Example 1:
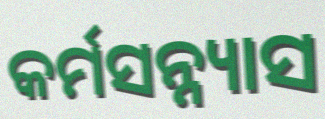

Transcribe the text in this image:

କର୍ମସନ୍ନ୍ୟାସ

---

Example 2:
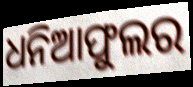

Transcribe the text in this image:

ଧନିଆଫୁଲର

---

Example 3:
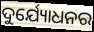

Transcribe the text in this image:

ଦୁର୍ଯ୍ୟୋଧନର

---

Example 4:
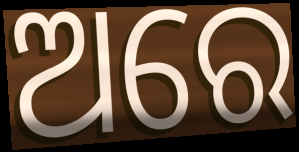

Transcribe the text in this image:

ଅରେ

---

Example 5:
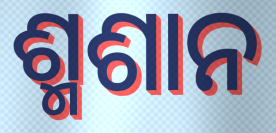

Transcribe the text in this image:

ଶ୍ମଶାନ